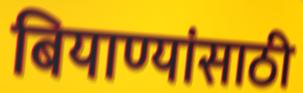
बियाण्यांसाठी